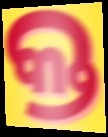
କ୍ତ